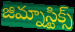
జిమ్నాస్టిక్స్